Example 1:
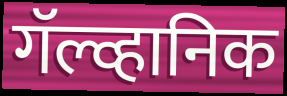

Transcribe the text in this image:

गॅल्व्हानिक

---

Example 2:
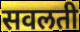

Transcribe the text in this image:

सवलती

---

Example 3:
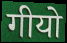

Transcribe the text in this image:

गीयो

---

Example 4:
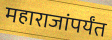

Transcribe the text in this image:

महाराजांपर्यंत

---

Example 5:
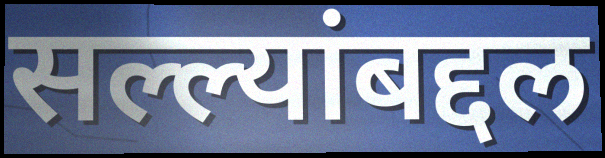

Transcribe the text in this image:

सल्ल्यांबद्दल